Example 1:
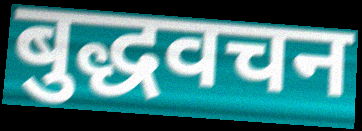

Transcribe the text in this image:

बुद्धवचन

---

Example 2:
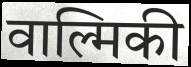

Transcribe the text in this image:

वाल्मिकी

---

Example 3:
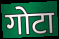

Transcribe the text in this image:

गोटा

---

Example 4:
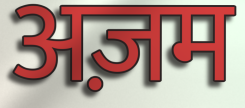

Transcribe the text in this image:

अज़म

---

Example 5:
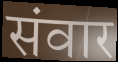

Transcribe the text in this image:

संवार